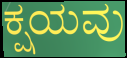
ಕ್ಷಯವು